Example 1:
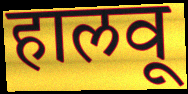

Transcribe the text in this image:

हालवू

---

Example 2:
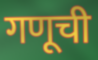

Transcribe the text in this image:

गणूची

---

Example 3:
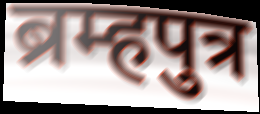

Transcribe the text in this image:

ब्रम्हपुत्र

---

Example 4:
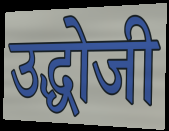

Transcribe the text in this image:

उद्धोजी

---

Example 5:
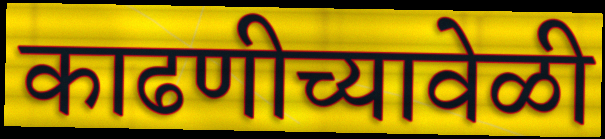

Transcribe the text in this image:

काढणीच्यावेळी